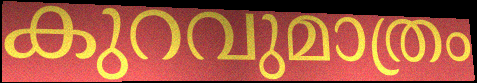
കുറവുമാത്രം